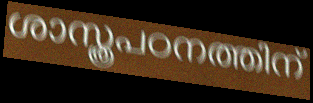
ശാസ്ത്രപഠനത്തിന്